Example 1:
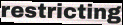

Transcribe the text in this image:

restricting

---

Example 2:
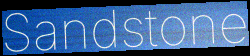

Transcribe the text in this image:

Sandstone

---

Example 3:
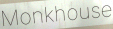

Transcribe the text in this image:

Monkhouse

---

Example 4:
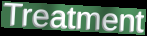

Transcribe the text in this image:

Treatment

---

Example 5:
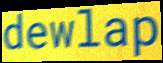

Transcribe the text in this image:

dewlap